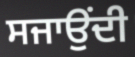
ਸਜਾਉਂਦੀ